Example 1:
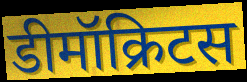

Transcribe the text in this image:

डीमॉक्रिटस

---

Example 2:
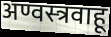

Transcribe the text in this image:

अण्वस्त्रवाहू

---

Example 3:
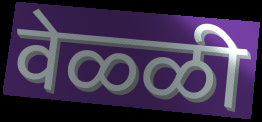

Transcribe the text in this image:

वेळ्ळी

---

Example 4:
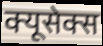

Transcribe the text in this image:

क्यूसेक्स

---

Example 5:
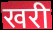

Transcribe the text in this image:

खरी